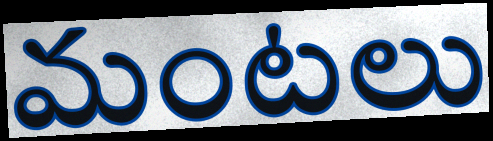
మంటలు